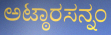
ಅಟ್ಠಾರಸನ್ನಂ